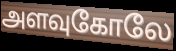
அளவுகோலே